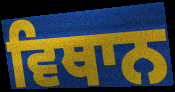
ਵਿਥਾਨ